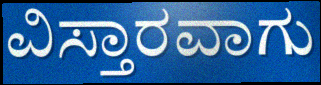
ವಿಸ್ತಾರವಾಗು